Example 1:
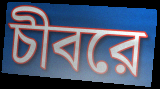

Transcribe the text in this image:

চীবরে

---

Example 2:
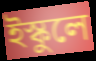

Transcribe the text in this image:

ইস্কুলে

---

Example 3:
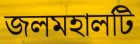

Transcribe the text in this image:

জলমহালটি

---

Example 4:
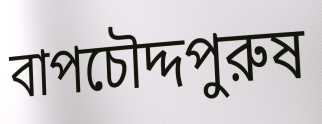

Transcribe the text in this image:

বাপচৌদ্দপুরুষ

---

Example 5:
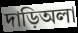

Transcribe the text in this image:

দাড়িঅলা